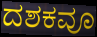
ದಶಕವೂ